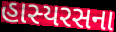
હાસ્યરસના